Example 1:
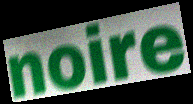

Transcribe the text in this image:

noire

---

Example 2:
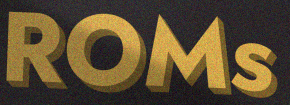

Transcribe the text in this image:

ROMs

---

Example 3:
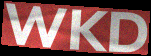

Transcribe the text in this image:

WKD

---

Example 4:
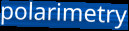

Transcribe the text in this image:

polarimetry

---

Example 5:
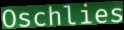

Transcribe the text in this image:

Oschlies